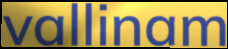
vallinam